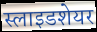
स्लाइडशेयर